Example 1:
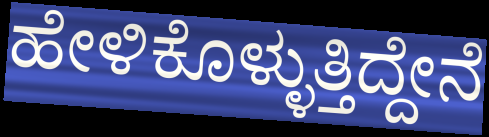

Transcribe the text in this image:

ಹೇಳಿಕೊಳ್ಳುತ್ತಿದ್ದೇನೆ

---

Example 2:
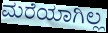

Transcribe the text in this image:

ಮರೆಯಾಗಿಲ್ಲ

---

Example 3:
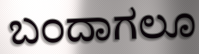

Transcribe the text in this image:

ಬಂದಾಗಲೂ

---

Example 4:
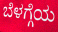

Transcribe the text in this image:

ಬೆಳಗ್ಗೆಯ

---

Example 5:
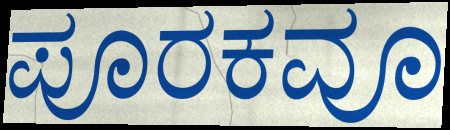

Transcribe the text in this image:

ಪೂರಕವೂ